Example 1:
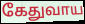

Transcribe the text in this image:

கேதுவாய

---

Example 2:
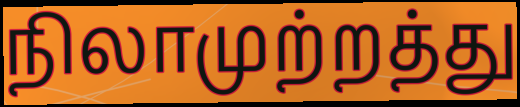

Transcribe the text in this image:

நிலாமுற்றத்து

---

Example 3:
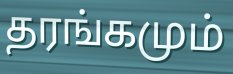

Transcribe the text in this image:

தரங்கமும்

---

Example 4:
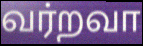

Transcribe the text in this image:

வர்றவா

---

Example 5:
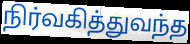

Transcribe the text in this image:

நிர்வகித்துவந்த